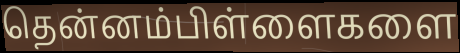
தென்னம்பிள்ளைகளை